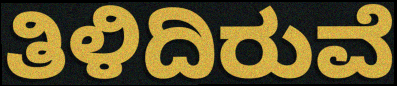
ತಿಳಿದಿರುವೆ